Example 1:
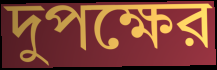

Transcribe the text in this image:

দুপক্ষের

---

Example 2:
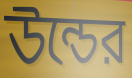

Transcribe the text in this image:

উন্ডের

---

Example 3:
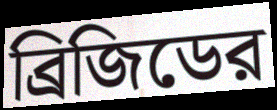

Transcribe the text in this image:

ব্রিজিডের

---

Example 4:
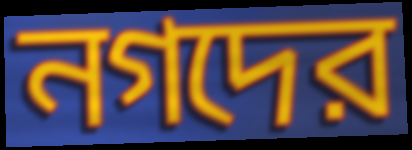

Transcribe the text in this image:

নগদের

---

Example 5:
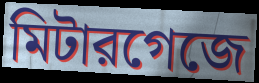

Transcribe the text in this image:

মিটারগেজে